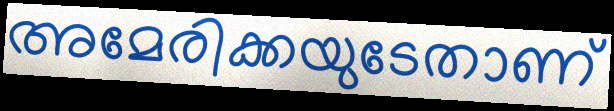
അമേരിക്കയുടേതാണ്